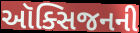
ઑક્સિજનની